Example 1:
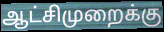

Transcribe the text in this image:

ஆட்சிமுறைக்கு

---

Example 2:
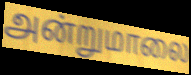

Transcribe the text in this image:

அன்றுமாலை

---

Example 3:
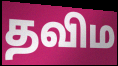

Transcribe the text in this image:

தவிம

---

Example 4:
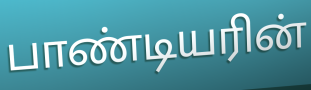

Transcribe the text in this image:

பாண்டியரின்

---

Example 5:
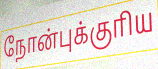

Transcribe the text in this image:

நோன்புக்குரிய